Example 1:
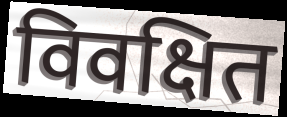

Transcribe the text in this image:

विवक्षित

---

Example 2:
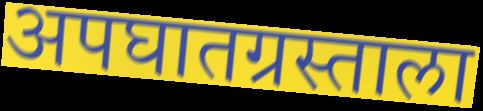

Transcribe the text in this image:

अपघातग्रस्ताला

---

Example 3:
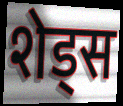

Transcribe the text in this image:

शेड्स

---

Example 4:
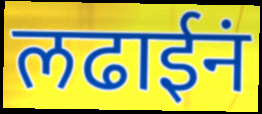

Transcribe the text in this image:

लढाईनं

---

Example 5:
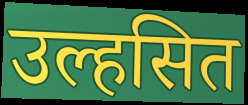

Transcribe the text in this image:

उल्हसित